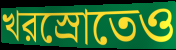
খরস্রোতেও